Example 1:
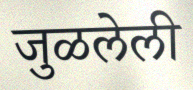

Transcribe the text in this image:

जुळलेली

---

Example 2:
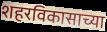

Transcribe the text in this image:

शहरविकासाच्या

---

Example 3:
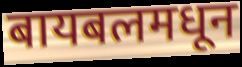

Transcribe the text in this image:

बायबलमधून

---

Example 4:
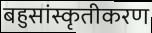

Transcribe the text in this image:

बहुसांस्कृतीकरण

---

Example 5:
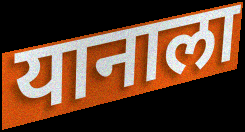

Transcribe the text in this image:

यानाला